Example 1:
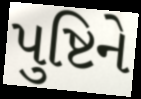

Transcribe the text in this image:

પુષ્ટિને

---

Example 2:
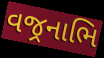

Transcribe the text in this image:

વજ્રનાભિ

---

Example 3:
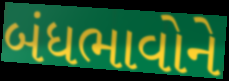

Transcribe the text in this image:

બંધભાવોને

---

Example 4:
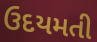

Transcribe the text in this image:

ઉદયમતી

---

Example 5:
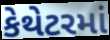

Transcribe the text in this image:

કેથેટરમાં